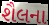
શૈલના